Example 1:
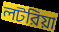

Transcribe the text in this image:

লটরিয়া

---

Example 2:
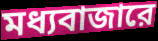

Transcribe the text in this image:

মধ্যবাজারে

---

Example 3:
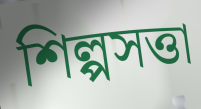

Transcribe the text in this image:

শিল্পসত্তা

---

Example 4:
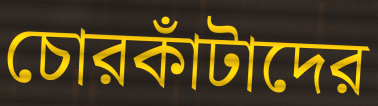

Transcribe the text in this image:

চোরকাঁটাদের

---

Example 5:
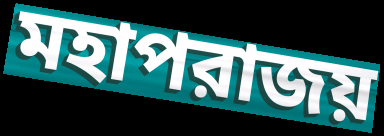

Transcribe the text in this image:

মহাপরাজয়